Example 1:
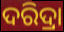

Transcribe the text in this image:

ଦରିଦ୍ରା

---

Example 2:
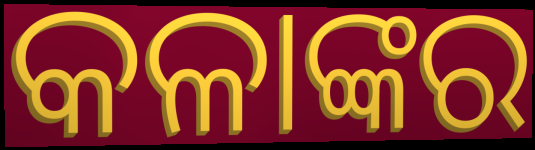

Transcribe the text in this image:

କଳାଙ୍କର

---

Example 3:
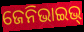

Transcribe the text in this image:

ଜେନିଭାଇଭ୍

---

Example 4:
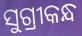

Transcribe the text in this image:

ସୁଗ୍ରୀକନ୍ଧ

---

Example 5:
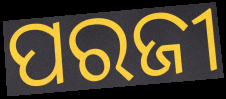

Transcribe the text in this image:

ପରଜୀ